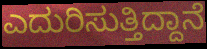
ಎದುರಿಸುತ್ತಿದ್ದಾನೆ